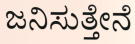
ಜನಿಸುತ್ತೇನೆ